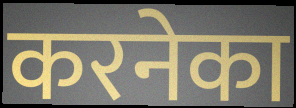
करनेका